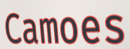
Camoes